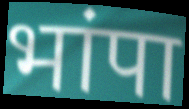
भांपा